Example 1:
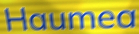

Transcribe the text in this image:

Haumea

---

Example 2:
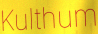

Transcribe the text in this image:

Kulthum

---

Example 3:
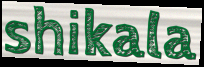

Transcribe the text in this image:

shikala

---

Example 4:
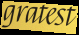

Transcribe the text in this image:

gratest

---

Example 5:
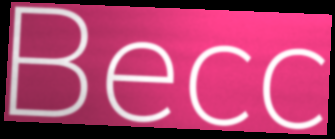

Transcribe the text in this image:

Becc